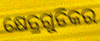
କ୍ଷେତ୍ରଗୁଡିକର